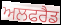
ਅਲਫਰੈਡ